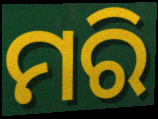
ମରି